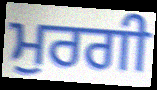
ਮੁਰਗੀ